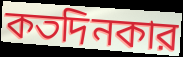
কতদিনকার